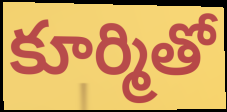
కూర్మితో